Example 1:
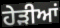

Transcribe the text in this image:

ਹੇੜੀਆਂ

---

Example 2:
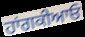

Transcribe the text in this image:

ਹਾਂਗਕੀਆਓ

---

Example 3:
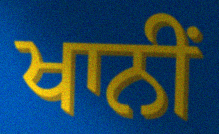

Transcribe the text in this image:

ਖਾਨੀਂ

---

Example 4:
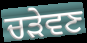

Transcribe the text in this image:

ਚੜੇਵਣ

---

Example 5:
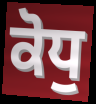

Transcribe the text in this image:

ਕੋਧੁ